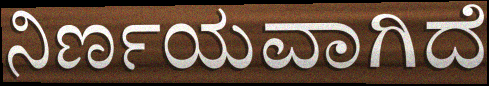
ನಿರ್ಣಯವಾಗಿದೆ